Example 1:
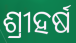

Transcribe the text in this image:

ଶ୍ରୀହର୍ଷ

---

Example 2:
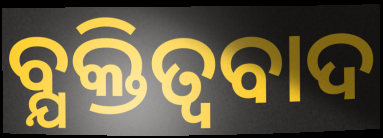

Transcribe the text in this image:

ବ୍ଯକ୍ତିତ୍ଵବାଦ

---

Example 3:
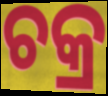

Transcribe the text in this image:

ଚକ୍ର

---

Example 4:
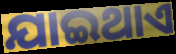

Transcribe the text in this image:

ଯାଇଥାଏ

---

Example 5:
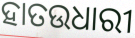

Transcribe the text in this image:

ହାତଉଧାରୀ